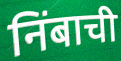
निंबाची